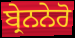
ਬ੍ਰੇਨਨੇਰੋ